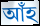
আঁহ